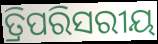
ତ୍ରିପରିସରୀୟ